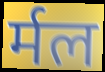
र्मल